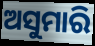
ଅସୁମାରି